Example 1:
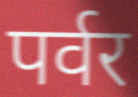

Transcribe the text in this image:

पर्वर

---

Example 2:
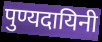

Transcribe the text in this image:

पुण्यदायिनी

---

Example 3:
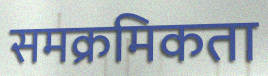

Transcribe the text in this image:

समक्रमिकता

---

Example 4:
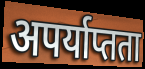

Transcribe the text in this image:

अपर्याप्तता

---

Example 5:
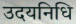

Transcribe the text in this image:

उदयनिधि